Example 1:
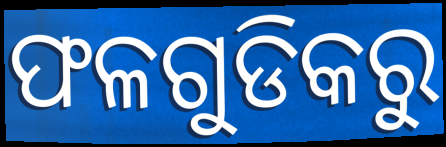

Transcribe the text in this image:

ଫଳଗୁଡିକରୁ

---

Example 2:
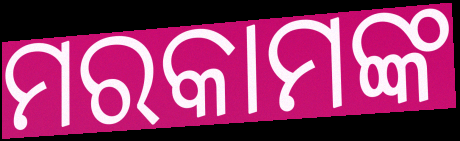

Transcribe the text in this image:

ମରକାମଙ୍କ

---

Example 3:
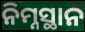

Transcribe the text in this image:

ନିମ୍ନସ୍ଥାନ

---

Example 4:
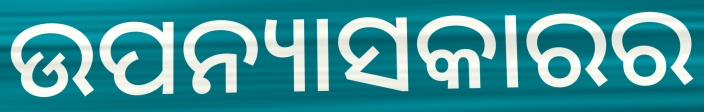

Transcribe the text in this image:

ଉପନ୍ୟାସକାରର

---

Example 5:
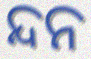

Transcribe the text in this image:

ନ୍ଦନ